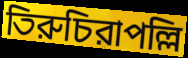
তিরুচিরাপল্লি